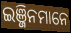
ଇଞ୍ଜିନମାନେ